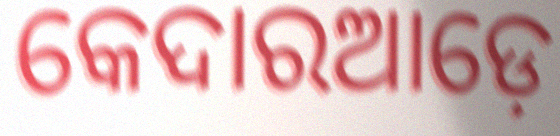
କେଦାରଆଡ଼େ